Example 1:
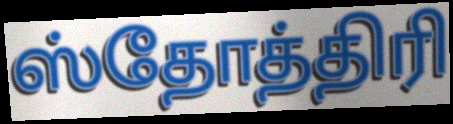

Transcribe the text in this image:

ஸ்தோத்திரி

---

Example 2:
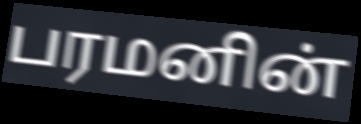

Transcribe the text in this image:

பரமனின்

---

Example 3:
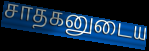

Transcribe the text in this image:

சாதகனுடைய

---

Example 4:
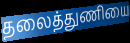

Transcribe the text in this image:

தலைத்துணியை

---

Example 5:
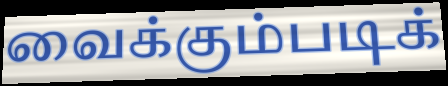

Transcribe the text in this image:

வைக்கும்படிக்